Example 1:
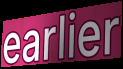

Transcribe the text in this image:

earlier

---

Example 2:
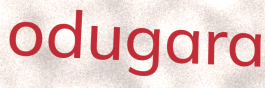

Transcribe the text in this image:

odugara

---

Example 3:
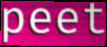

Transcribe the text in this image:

peet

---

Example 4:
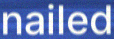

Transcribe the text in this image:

nailed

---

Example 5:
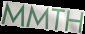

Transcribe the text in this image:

MMTH